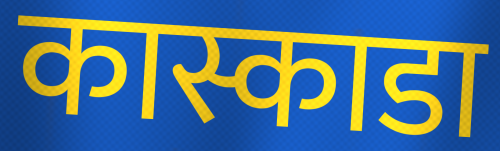
कास्काडा